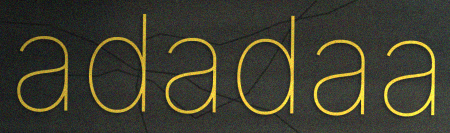
adadaa